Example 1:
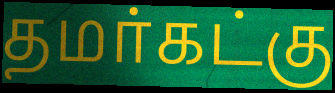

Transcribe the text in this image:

தமர்கட்கு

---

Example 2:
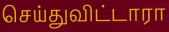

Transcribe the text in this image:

செய்துவிட்டாரா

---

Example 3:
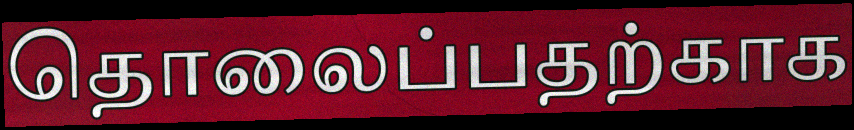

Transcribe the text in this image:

தொலைப்பதற்காக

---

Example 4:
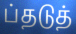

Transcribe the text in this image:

ப்தடுத்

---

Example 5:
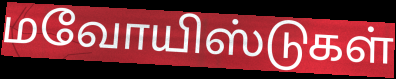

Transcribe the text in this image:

மவோயிஸ்டுகள்